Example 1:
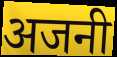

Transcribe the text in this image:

अजनी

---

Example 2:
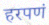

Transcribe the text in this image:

हरपणं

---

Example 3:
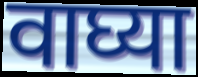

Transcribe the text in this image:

वाघ्या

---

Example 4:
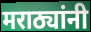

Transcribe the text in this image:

मराठ्यांनी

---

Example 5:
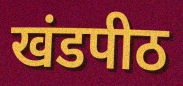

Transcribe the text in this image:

खंडपीठ